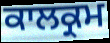
ਕਾਲਕ੍ਰਮ